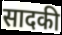
सादकी